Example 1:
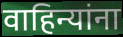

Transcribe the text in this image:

वाहिन्यांना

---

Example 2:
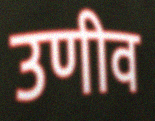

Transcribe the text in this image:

उणीव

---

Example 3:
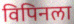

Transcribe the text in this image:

विपिनला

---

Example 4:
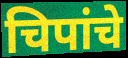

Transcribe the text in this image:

चिपांचे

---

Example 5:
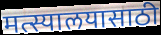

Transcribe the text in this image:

मत्स्यालयासाठी